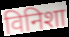
विनिशा